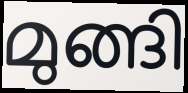
മുങ്ങി